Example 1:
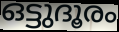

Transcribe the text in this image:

ഒട്ടുദൂരം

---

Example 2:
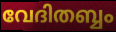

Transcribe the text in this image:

വേദിതബ്ബം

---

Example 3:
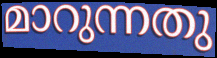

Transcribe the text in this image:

മാറുന്നതു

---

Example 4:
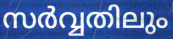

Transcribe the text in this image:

സർവ്വതിലും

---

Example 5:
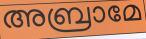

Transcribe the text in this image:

അബ്രാമേ